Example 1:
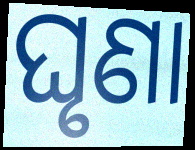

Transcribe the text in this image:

ଘୃଣା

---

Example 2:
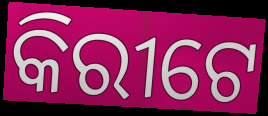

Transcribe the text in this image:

କିରୀଟେ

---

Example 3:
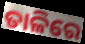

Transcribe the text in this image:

ତାଳିରେ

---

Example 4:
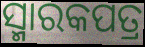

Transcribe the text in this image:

ସ୍ମାରକପତ୍ର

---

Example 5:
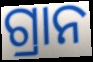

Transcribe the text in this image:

ଗ୍ରାନ